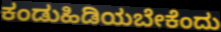
ಕಂಡುಹಿಡಿಯಬೇಕೆಂದು